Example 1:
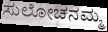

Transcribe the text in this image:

ಸುಲೋಚನಮ್ಮ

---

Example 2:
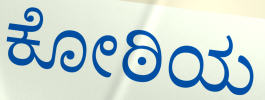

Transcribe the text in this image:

ಕೋಠಿಯ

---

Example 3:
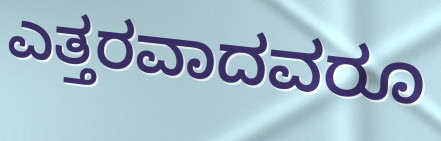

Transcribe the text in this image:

ಎತ್ತರವಾದವರೂ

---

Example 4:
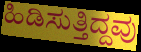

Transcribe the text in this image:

ಹಿಡಿಸುತ್ತಿದ್ದವು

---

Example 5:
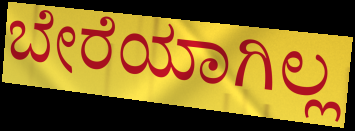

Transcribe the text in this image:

ಬೇರೆಯಾಗಿಲ್ಲ